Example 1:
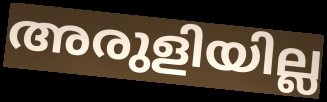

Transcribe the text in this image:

അരുളിയില്ല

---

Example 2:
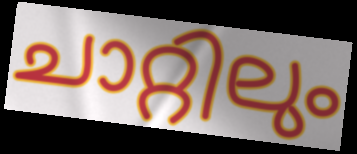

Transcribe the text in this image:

ചാറ്റിലും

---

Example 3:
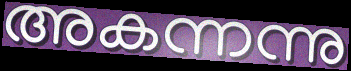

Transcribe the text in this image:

അകന്നന്നു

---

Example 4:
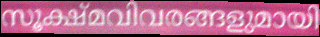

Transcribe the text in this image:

സൂക്ഷ്മവിവരങ്ങളുമായി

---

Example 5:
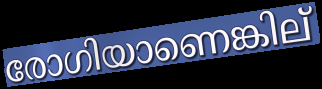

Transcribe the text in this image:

രോഗിയാണെങ്കില്